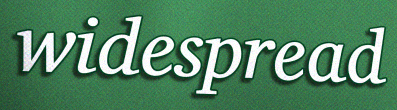
widespread